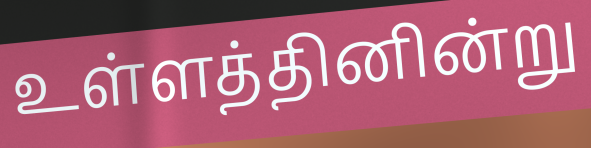
உள்ளத்தினின்று